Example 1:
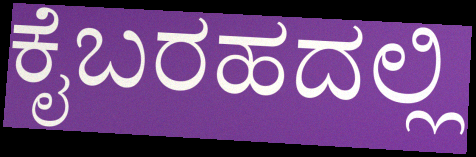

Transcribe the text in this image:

ಕೈಬರಹದಲ್ಲಿ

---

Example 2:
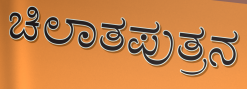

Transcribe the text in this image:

ಚಿಲಾತಪುತ್ರನ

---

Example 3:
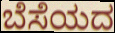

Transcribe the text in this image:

ಬೆಸೆಯದ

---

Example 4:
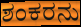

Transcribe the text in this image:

ಶಂಕರನು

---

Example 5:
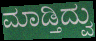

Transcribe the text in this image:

ಮಾಡ್ತಿದ್ವು